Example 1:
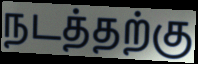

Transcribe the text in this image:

நடத்தற்கு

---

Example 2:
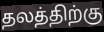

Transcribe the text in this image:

தலத்திற்கு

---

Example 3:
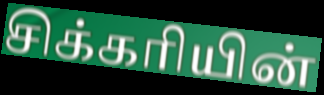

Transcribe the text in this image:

சிக்கரியின்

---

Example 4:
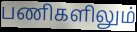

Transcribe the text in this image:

பணிகளிலும்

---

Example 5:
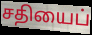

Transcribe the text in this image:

சதியைப்